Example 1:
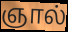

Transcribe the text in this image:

ஞால்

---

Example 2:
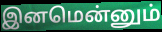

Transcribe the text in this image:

இனமென்னும்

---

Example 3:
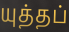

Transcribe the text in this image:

யுத்தப்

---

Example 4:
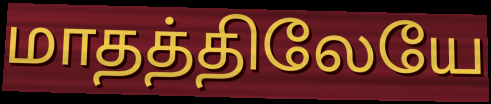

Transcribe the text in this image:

மாதத்திலேயே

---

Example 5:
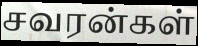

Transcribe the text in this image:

சவரன்கள்